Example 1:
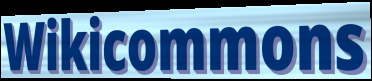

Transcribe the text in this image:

Wikicommons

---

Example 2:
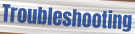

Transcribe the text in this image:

Troubleshooting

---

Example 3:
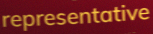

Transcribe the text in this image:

representative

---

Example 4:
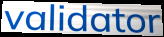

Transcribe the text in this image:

validator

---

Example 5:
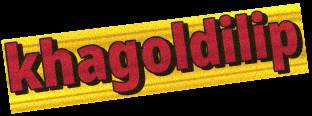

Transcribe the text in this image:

khagoldilip